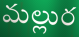
మల్లుర